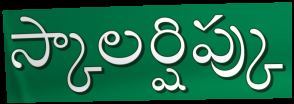
స్కాలర్షిప్కు